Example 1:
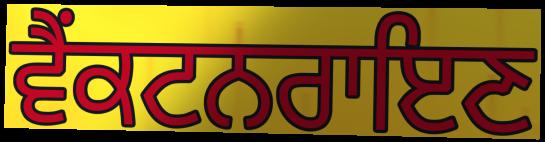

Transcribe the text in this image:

ਵੈਂਕਟਨਰਾਇਣ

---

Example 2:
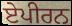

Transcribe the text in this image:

ਏਪੀਰਨ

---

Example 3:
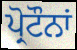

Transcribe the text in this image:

ਪ੍ਰੋਟੌਨਾਂ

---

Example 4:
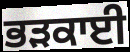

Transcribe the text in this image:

ਭੜਕਾਈ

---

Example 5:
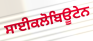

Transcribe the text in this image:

ਸਾਈਕਲੋਬਿਊਟੇਨ